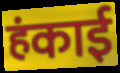
हंकाई